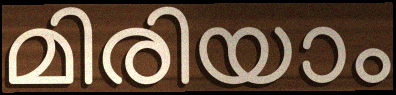
മിരിയാം